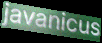
javanicus